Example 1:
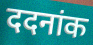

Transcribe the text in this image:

ददनांक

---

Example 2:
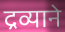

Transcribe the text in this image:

द्रव्याने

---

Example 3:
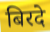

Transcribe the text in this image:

बिरदे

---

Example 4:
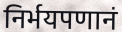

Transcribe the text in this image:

निर्भयपणानं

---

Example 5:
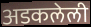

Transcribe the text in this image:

अडकलेली